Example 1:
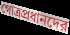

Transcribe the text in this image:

গোত্রপ্রধানদের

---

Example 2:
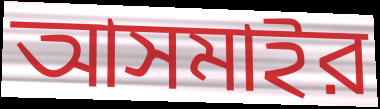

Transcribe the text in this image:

আসমাইর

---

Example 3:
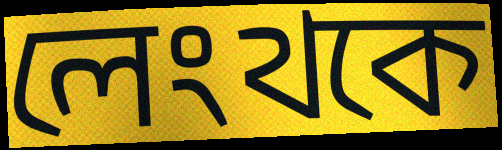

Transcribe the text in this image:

লেংথকে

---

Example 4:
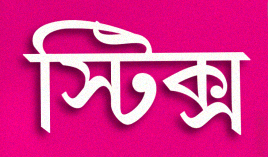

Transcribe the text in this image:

স্টিক্স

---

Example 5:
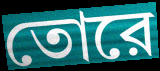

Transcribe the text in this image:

তোরে